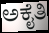
ಅಕೈತಿ